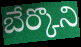
బేర్కొని